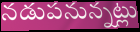
నడుపనున్నట్లు